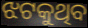
ଝଟକୁଥିବ